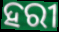
ହରୀ